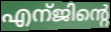
എന്ജിന്റെ